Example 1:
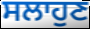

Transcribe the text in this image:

ਸਲਾਹੁਣ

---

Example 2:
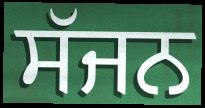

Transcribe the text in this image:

ਸੱਜਨ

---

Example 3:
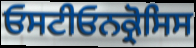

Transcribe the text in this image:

ਓਸਟੀਓਨਕ੍ਰੋਸਿਸ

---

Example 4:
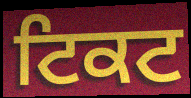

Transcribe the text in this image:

ਟਿਕਟ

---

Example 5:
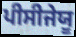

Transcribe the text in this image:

ਪੀਸੀਜੇਯੂ